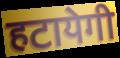
हटायेगी